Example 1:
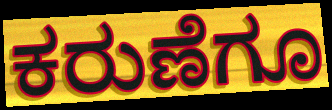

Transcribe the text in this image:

ಕರುಣೆಗೂ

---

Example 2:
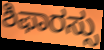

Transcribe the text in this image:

ಶಿಫಾರಸ್ಸು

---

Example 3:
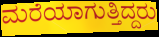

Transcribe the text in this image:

ಮರೆಯಾಗುತ್ತಿದ್ದರು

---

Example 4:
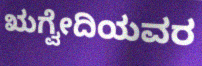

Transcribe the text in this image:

ಋಗ್ವೇದಿಯವರ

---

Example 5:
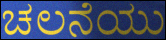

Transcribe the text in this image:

ಚಲನೆಯು